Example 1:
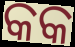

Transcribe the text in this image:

କକ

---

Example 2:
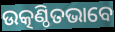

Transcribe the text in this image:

ଉତ୍କଣ୍ଠିତଭାବେ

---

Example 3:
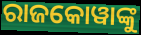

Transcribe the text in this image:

ରାଜକୋୱାଙ୍କୁ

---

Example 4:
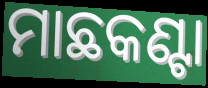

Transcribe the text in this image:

ମାଛକଣ୍ଟା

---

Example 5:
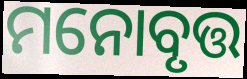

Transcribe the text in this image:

ମନୋବୃତ୍ତ